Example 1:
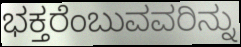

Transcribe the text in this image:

ಭಕ್ತರೆಂಬುವವರಿನ್ನು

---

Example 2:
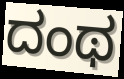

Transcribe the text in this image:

ದಂಥ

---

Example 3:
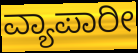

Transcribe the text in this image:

ವ್ಯಾಪಾರೀ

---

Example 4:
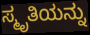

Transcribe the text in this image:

ಸ್ಮೃತಿಯನ್ನು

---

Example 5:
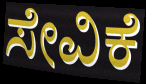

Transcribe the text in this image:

ಸೇವಿಕೆ